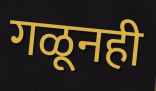
गळूनही